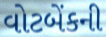
વોટબેંકની